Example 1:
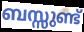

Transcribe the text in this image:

ബസ്സുണ്ട്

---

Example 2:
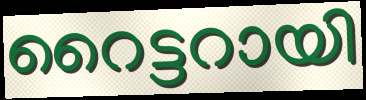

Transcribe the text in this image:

റൈട്ടറായി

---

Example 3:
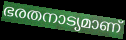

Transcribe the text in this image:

ഭരതനാട്യമാണ്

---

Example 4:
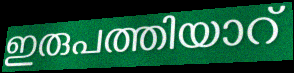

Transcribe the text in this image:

ഇരുപത്തിയാറ്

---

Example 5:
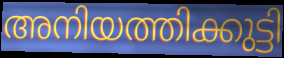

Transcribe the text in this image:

അനിയത്തിക്കുട്ടി